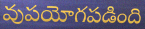
వుపయోగపడింది